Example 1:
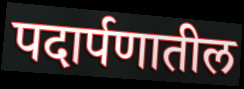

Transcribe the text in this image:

पदार्पणातील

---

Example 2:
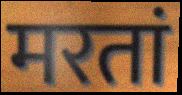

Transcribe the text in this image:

मरतां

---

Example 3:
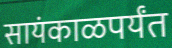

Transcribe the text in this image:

सायंकाळपर्यंत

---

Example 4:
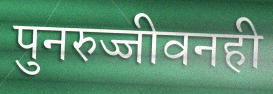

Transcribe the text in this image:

पुनरुज्जीवनही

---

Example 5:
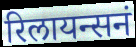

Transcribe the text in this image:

रिलायन्सनं